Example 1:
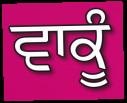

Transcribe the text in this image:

ਵਾਕੂੰ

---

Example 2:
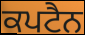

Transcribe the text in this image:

ਕਪਟੈਨ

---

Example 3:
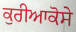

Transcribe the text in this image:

ਕੁਰੀਆਕੋਸੇ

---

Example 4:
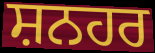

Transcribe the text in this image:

ਸ਼ਨਹਰ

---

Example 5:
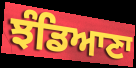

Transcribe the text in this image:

ਝੰਡਿਆਣਾ